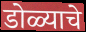
डोळ्याचे